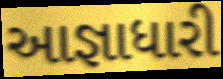
આજ્ઞાધારી